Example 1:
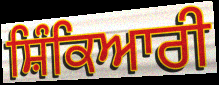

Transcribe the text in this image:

ਸ਼ਿੰਕਿਆਰੀ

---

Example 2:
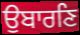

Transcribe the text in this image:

ਉਬਾਰਣਿ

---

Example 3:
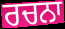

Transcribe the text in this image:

ਰਚਨਾ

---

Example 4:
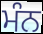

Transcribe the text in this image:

ਮੰਨ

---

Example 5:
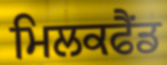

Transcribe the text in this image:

ਮਿਲਕਫੈਂਡ